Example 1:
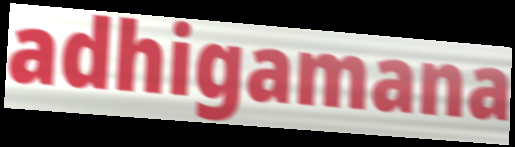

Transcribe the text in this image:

adhigamana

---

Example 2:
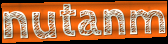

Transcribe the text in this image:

nutanm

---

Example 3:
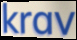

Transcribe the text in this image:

krav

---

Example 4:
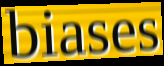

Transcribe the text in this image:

biases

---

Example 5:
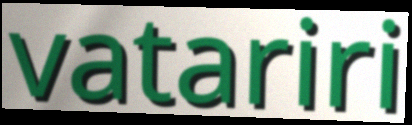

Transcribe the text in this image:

vatariri